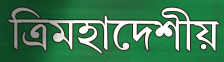
ত্রিমহাদেশীয়